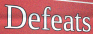
Defeats